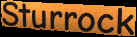
Sturrock